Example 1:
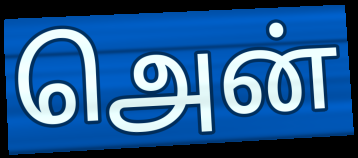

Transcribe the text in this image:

அென்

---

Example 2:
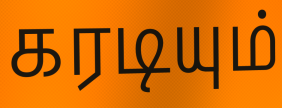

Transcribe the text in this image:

கரடியும்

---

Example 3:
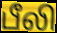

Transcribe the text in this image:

பீலி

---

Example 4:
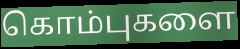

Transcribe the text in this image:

கொம்புகளை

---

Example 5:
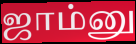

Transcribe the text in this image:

ஜாம்னு